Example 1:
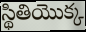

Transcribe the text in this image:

స్థితియొక్క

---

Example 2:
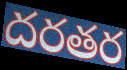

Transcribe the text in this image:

దరతర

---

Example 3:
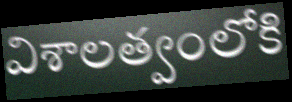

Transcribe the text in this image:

విశాలత్వంలోకి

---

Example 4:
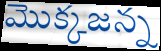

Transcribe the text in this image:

మొక్కజన్న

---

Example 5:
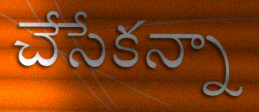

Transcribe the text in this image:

చేసేకన్నా